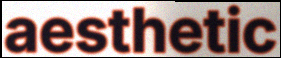
aesthetic